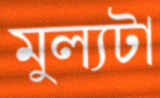
মুল্যটা